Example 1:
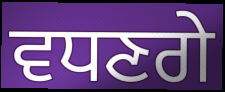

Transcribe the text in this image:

ਵਧਣਗੇ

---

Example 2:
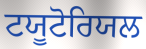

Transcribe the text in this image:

ਟਯੂਟੋਰਿਯਲ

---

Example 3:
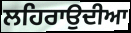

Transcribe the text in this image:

ਲਹਿਰਾਉਦੀਆ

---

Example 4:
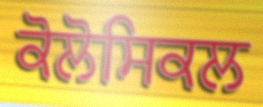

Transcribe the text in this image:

ਕੋਲੋਸਿਕਲ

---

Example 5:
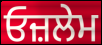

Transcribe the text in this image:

ਓਜ਼ਲੇਮ